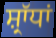
ਸ਼੍ਰਾੱਧਾਂ